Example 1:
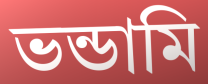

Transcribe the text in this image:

ভন্ডামি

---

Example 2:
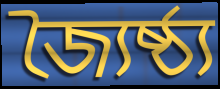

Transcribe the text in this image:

জ্যৈষ্ঠ্য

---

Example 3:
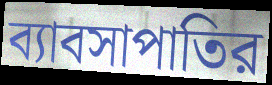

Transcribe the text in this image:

ব্যাবসাপাতির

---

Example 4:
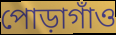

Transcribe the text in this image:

পোড়াগাঁও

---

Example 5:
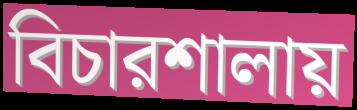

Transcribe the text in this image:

বিচারশালায়